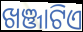
ଖଞ୍ଜାଟିଏ